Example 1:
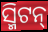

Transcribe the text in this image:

ସ୍ମିଟନ୍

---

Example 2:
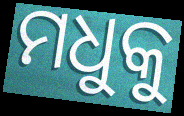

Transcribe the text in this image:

ମଧୁକୁ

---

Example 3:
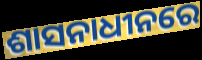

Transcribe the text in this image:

ଶାସନାଧୀନରେ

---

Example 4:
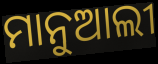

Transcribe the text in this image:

ମାନୁଆଲୀ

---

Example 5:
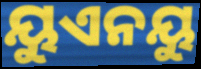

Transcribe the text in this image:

ୟୁଏନୟୁ